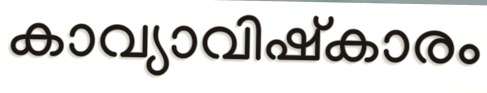
കാവ്യാവിഷ്കാരം